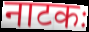
नाटकः